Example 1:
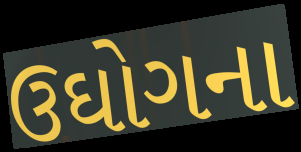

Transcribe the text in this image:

ઉઘોગના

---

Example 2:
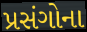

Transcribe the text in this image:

પ્રસંગોના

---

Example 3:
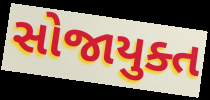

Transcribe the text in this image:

સોજાયુક્ત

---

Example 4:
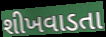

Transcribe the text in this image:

શીખવાડતા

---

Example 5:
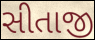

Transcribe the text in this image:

સીતાજી